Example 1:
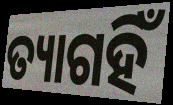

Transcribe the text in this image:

ତ୍ୟାଗହିଁ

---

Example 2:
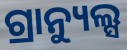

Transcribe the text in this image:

ଗ୍ରାନ୍ୟୁଲ୍ସ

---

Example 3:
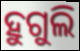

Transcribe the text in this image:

ହୁଗୁଲି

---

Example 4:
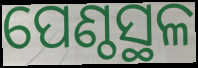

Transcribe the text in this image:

ପେଣ୍ଠସ୍ଥଳ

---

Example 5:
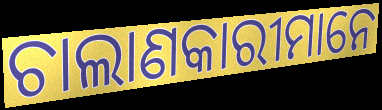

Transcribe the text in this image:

ଚାଲାଣକାରୀମାନେ